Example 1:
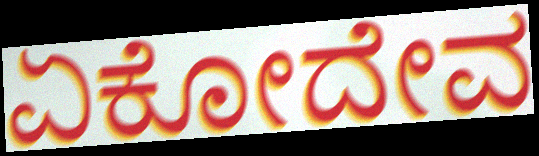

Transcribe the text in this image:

ಏಕೋದೇವ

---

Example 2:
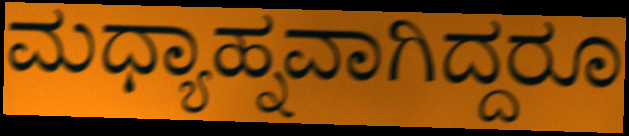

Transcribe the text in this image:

ಮಧ್ಯಾಹ್ನವಾಗಿದ್ದರೂ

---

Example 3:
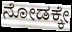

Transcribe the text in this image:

ನೋಡಕ್ಕೇ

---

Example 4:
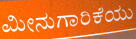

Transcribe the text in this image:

ಮೀನುಗಾರಿಕೆಯು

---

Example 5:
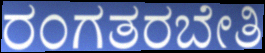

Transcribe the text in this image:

ರಂಗತರಬೇತಿ